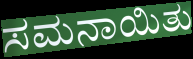
ಸಮನಾಯಿತು